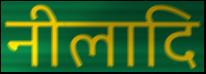
नीलादि